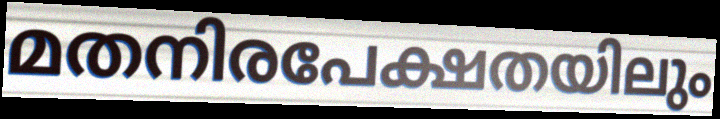
മതനിരപേക്ഷതയിലും